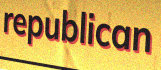
republican